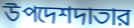
উপদেশদাতার